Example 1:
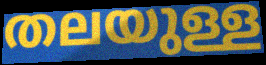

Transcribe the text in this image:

തലയുള്ള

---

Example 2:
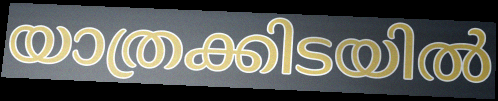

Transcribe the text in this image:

യാത്രക്കിടയിൽ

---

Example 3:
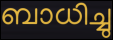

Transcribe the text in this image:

ബാധിച്ചു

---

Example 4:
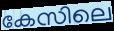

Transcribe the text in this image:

കേസിലെ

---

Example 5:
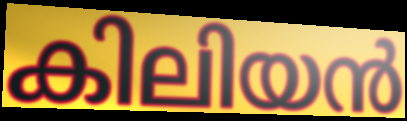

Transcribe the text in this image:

കിലിയൻ